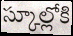
స్కూల్లోకి